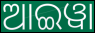
ଆଇୱା